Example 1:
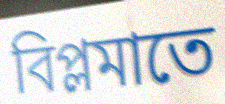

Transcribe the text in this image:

বিপ্লমাতে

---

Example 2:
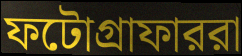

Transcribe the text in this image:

ফটোগ্রাফাররা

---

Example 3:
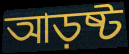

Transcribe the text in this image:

আড়ষ্ট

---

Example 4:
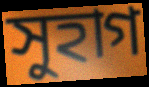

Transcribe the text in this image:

সুহাগ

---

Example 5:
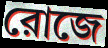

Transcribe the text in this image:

রোজে